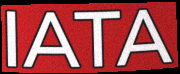
IATA